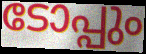
ടോപ്പും